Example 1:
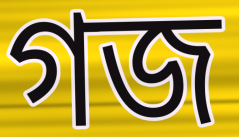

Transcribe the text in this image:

গজ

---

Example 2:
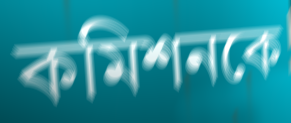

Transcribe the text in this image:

কমিশনকে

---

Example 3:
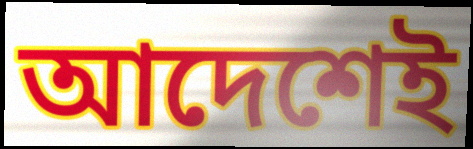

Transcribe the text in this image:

আদেশেই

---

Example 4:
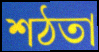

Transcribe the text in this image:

শঠতা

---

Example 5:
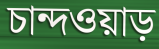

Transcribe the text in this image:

চান্দওয়াড়